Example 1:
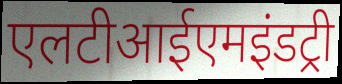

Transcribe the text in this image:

एलटीआईएमइंडट्री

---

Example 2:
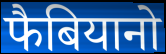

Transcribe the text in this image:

फैबियानो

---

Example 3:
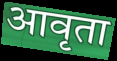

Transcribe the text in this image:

आवृता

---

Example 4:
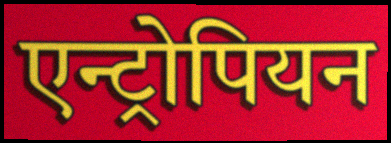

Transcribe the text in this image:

एन्ट्रोपियन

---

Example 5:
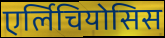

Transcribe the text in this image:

एर्लिचियोसिस